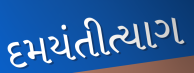
દમયંતીત્યાગ